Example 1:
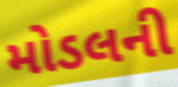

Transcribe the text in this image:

મોડલની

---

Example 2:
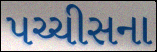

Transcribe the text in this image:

પચ્ચીસના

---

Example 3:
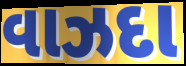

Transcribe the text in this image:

વાઝદા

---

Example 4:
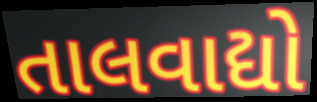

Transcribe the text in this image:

તાલવાદ્યો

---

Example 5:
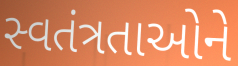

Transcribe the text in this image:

સ્વતંત્રતાઓને